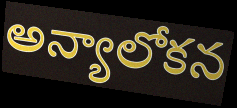
అన్యాలోకన